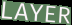
LAYER